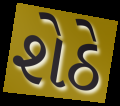
શેઠે